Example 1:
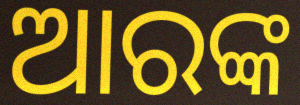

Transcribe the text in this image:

ଆରଙ୍କ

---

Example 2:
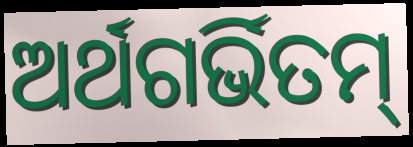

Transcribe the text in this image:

ଅର୍ଥଗର୍ଭିତମ୍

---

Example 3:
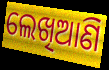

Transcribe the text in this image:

ଲେଖିଆଣି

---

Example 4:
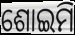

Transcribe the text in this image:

ଶୋଇମି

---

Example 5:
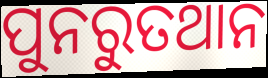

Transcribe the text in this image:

ପୁନରୁତଥାନ